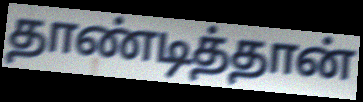
தாண்டித்தான்